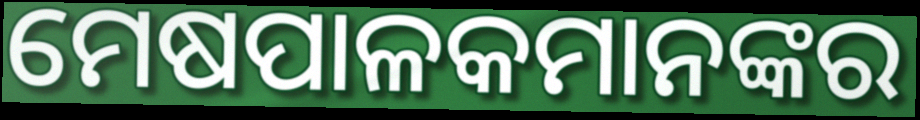
ମେଷପାଳକମାନଙ୍କର